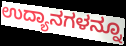
ಉದ್ಯಾನಗಳನ್ನೂ